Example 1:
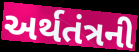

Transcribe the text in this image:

અર્થતંત્રની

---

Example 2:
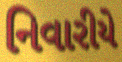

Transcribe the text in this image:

નિવારીયે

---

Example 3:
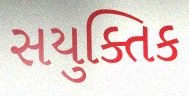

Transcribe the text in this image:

સયુક્તિક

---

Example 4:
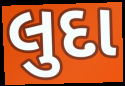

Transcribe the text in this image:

લુદા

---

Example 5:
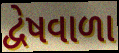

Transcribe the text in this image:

દ્વેષવાળા